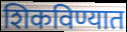
शिकविण्यात